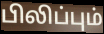
பிலிப்பும்